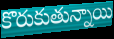
కొరుకుతున్నాయి